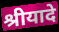
श्रीयादे